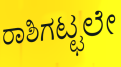
ರಾಶಿಗಟ್ಟಲೇ